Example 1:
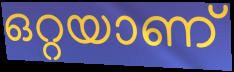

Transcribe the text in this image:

ഒറ്റയാണ്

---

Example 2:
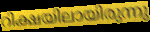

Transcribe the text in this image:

റിക്ഷയിലായിരുന്നു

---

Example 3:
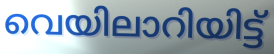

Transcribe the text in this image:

വെയിലാറിയിട്ട്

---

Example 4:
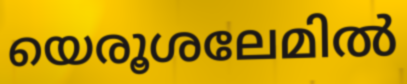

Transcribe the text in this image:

യെരൂശലേമിൽ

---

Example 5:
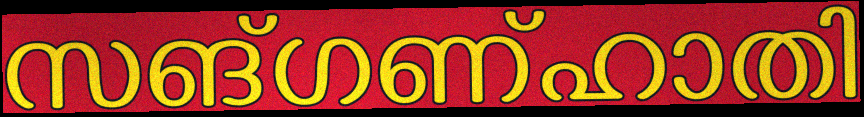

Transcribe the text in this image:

സങ്ഗണ്ഹാതി